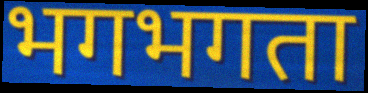
भगभगता